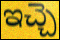
ఇచ్చె